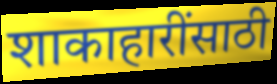
शाकाहारींसाठी